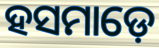
ହସମାଡ଼େ